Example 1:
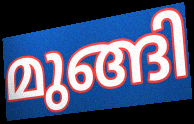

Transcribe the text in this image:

മുങ്ങി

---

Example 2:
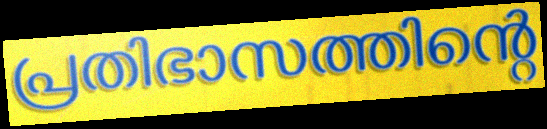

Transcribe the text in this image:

പ്രതിഭാസത്തിന്റെ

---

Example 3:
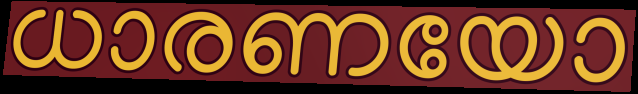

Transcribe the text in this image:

ധാരണയോ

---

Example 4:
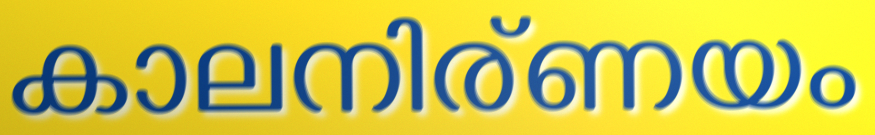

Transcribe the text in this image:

കാലനിര്ണയം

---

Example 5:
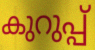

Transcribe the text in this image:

കുറുപ്പ്